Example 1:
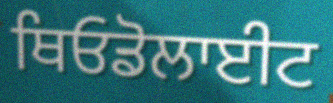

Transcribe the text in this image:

ਥਿਓਡੋਲਾਈਟ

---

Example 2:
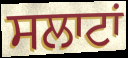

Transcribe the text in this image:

ਸਲਾਟਾਂ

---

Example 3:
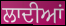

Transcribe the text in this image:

ਲਾਦੀਆਂ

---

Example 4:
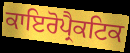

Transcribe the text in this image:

ਕਾਇਰੋਪ੍ਰੈਕਟਿਕ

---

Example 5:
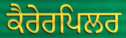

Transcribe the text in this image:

ਕੈਰੇਰਪਿਲਰ